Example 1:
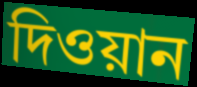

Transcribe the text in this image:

দিওয়ান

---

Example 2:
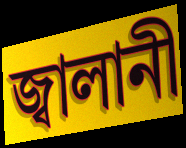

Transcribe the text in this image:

জ্বালানী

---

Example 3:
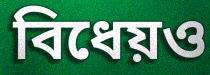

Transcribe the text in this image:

বিধেয়ও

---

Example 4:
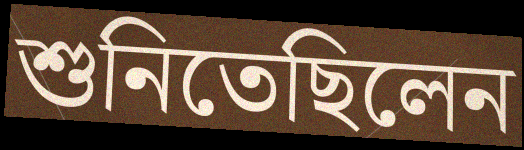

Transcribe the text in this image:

শুনিতেছিলেন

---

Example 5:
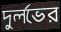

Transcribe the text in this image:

দুর্লভের